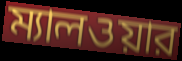
ম্যালওয়ার